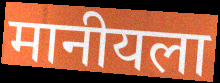
मानीयला